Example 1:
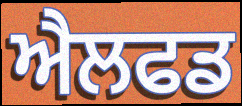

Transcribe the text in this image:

ਐਲਫਡ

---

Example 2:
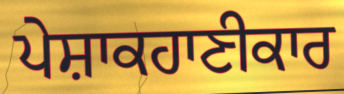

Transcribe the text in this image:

ਪੇਸ਼ਾਕਹਾਣੀਕਾਰ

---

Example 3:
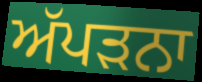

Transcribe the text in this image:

ਅੱਪੜਨਾ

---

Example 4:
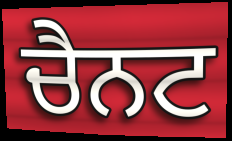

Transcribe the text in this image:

ਚੈਨਟ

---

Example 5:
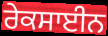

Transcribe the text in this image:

ਰੇਕਸਾਈਨ